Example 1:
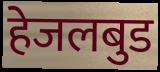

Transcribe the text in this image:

हेजलबुड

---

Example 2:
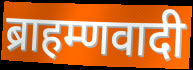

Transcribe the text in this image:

ब्राहम्णवादी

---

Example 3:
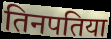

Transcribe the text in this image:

तिनपतिया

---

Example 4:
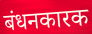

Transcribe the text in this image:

बंधनकारक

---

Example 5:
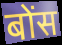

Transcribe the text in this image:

बोंस